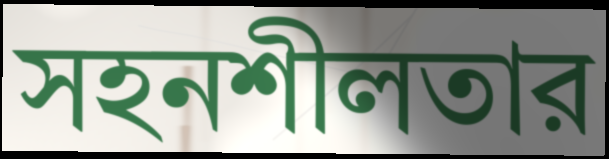
সহনশীলতার